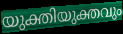
യുക്തിയുക്തവും